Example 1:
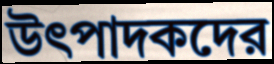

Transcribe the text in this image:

উৎপাদকদের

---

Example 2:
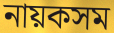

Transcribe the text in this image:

নায়কসম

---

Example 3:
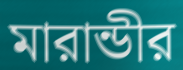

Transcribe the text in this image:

মারান্ডীর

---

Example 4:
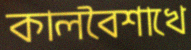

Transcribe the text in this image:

কালবৈশাখে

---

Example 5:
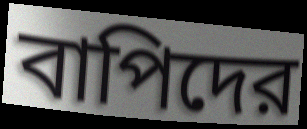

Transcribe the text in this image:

বাপিদের